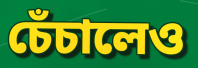
চেঁচালেও